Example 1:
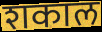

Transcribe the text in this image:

शकाल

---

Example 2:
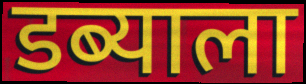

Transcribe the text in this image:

डब्याला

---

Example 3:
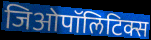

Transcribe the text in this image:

जिओपॉलिटिक्स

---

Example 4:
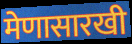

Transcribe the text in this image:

मेणासारखी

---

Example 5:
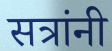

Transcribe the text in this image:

सत्रांनी